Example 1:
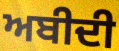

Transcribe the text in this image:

ਅਬੀਦੀ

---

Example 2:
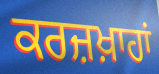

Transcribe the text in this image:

ਕਰਜ਼ਖ਼ਾਹਾਂ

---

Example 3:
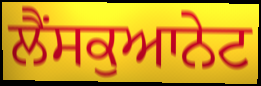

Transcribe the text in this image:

ਲੈਂਸਕੁਆਨੇਟ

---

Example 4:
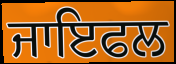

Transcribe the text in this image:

ਜਾਇਫਲ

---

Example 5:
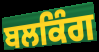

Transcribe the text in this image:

ਬਲਕਿੰਗ